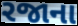
રજાના